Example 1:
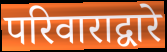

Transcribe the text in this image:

परिवाराद्वारे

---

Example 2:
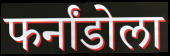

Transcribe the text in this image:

फर्नांडोला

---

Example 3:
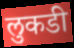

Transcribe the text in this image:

लुकडी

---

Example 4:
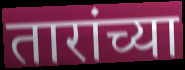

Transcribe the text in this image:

तारांच्या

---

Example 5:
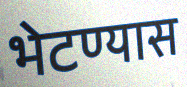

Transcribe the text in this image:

भेटण्यास